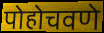
पोहोचवणे